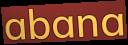
abana